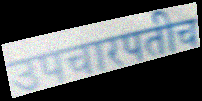
उपचारपतीच